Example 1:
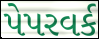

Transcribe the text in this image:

પેપરવર્ક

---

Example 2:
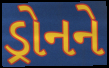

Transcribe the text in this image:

ડ્રોનને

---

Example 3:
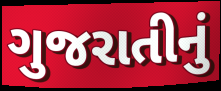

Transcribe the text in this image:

ગુજરાતીનું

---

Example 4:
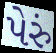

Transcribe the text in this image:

પેરું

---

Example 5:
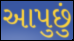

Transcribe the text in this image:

આપુછું